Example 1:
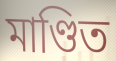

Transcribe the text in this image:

মাণ্ডিত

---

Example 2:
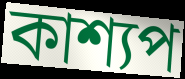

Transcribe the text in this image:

কাশ্যপ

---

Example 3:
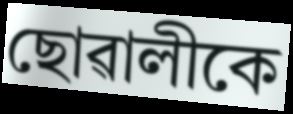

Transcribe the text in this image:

ছোৱালীকে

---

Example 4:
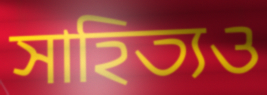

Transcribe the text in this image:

সাহিত্যও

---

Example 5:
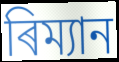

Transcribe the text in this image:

ৰিম্যান